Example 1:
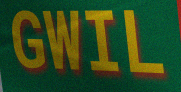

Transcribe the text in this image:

GWIL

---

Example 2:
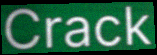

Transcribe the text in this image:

Crack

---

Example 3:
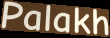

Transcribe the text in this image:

Palakh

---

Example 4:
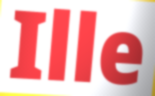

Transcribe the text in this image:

Ille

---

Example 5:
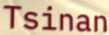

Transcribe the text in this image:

Tsinan